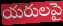
యరులపై